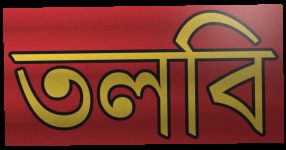
তলবি